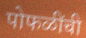
पोफळींची